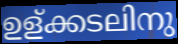
ഉള്ക്കടലിനു